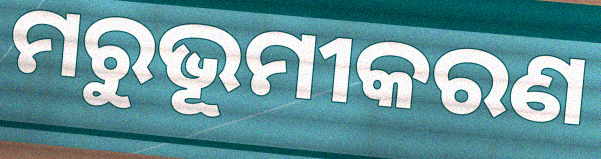
ମରୁଭୂମୀକରଣ